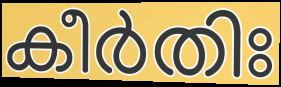
കീർതിഃ